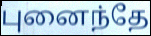
புனைந்தே